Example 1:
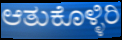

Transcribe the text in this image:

ಆತುಕೊಳ್ಳಿರಿ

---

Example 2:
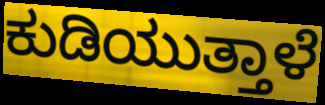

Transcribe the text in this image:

ಕುಡಿಯುತ್ತಾಳೆ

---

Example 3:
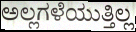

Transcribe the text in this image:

ಅಲ್ಲಗಳೆಯುತ್ತಿಲ್ಲ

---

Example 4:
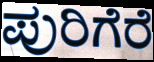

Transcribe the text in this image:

ಪುರಿಗೆರೆ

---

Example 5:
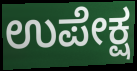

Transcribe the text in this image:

ಉಪೇಕ್ಷ